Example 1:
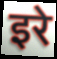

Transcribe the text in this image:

इरे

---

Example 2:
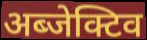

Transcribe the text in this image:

अब्जेक्टिव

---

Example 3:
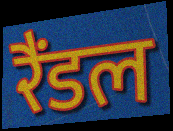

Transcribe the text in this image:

रैंडल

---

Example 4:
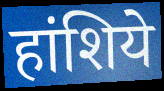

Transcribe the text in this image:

हांशिये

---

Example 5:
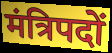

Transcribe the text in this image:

मंत्रिपदों